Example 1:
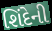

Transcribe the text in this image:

શિંદેની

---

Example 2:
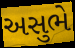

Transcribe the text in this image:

અસુભે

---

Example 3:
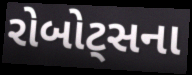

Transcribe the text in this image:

રોબોટ્સના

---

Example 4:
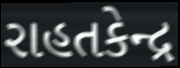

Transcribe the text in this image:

રાહતકેન્દ્ર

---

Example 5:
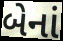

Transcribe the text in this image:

બેનાં